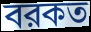
বরকত